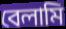
বেলামি